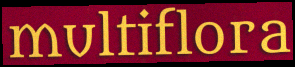
multiflora